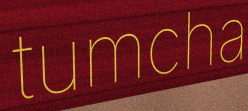
tumcha